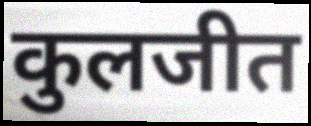
कुलजीत